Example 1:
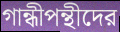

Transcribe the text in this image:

গান্ধীপন্থীদের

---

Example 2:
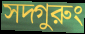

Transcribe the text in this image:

সদ্গুরুং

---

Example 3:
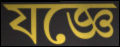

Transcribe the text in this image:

যজ্ঞে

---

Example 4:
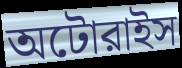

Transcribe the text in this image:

অটোরাইস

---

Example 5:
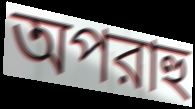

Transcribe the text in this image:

অপরাহু